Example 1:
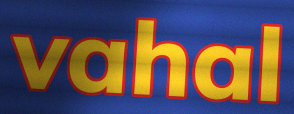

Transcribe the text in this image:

vahal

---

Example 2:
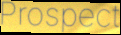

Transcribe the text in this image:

Prospect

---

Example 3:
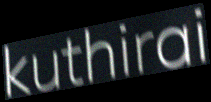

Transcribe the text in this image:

kuthirai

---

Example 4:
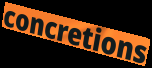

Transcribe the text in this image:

concretions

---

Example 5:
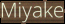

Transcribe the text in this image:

Miyake